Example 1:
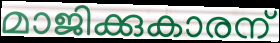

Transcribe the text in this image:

മാജിക്കുകാരന്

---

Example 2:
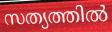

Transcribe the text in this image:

സത്യത്തിൽ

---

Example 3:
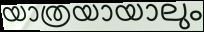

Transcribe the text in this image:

യാത്രയായാലും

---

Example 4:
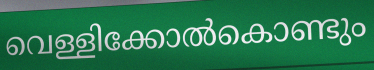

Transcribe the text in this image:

വെള്ളിക്കോൽകൊണ്ടും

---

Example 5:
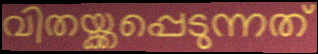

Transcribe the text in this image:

വിതയ്ക്കപ്പെടുന്നത്